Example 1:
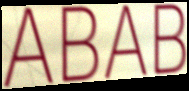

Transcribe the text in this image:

ABAB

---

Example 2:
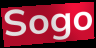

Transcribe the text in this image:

Sogo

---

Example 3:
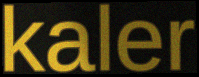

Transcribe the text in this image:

kaler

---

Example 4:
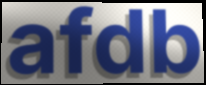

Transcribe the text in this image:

afdb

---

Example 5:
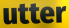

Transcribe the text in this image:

utter